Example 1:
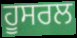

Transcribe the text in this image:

ਹੂਸਰਲ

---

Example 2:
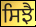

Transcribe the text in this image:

ਸਿਝੈ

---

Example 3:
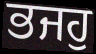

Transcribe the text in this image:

ਭਜਹੁ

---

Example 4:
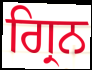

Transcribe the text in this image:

ਗ੍ਰਿਨ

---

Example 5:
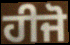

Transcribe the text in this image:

ਹੀਜੋ